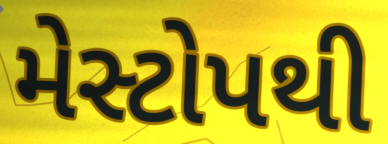
મેસ્ટોપથી